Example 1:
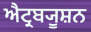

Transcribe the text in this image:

ਐਟ੍ਰਬ੍ਯੂਸ਼ਨ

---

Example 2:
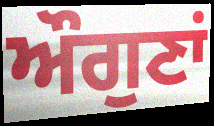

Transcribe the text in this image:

ਔਗੁਣਾਂ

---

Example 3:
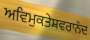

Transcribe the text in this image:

ਅਵਿਮੁਕਤੇਸ਼ਵਰਾਨੰਦ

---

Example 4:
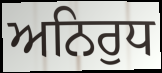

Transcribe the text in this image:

ਅਨਿਰੁਧ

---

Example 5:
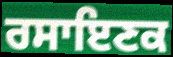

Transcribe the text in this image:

ਰਸਾਇਣਕ